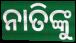
ନାତିଙ୍କୁ